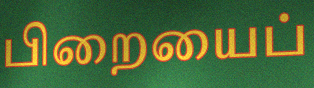
பிறையைப்